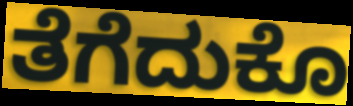
ತೆಗೆದುಕೊ